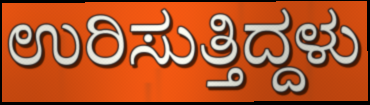
ಉರಿಸುತ್ತಿದ್ದಳು